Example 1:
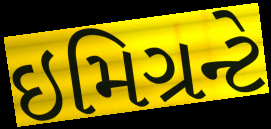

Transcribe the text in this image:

ઇમિગ્રન્ટે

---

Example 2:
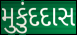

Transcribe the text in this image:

મુકુંદદાસ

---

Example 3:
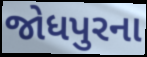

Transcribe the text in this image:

જોધપુરના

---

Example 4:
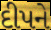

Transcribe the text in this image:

દીપને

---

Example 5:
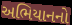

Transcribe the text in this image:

અભિયાનનો